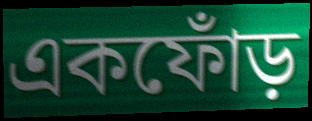
একফোঁড়